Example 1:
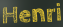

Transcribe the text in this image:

Henri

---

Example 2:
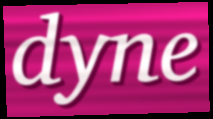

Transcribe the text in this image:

dyne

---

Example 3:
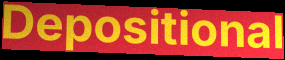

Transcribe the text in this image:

Depositional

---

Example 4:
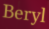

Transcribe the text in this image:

Beryl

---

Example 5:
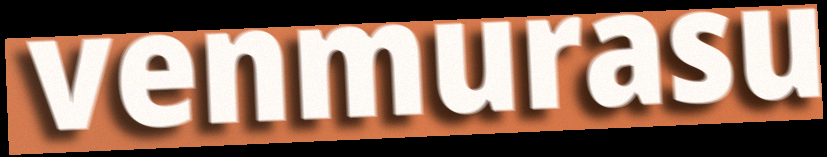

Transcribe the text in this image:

venmurasu